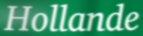
Hollande